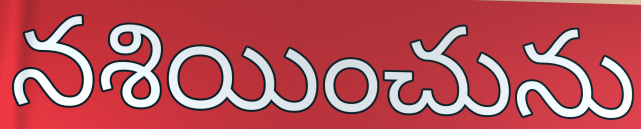
నశియించును